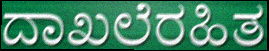
ದಾಖಲೆರಹಿತ